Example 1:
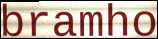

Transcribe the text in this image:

bramho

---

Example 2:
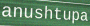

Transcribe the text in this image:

anushtupa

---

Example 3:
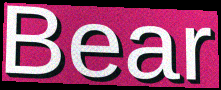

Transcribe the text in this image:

Bear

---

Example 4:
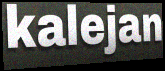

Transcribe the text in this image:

kalejan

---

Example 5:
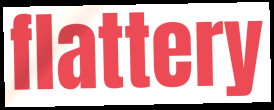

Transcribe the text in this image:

flattery